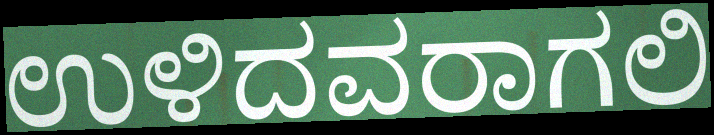
ಉಳಿದವರಾಗಲಿ